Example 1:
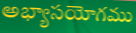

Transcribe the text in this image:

అభ్యాసయోగము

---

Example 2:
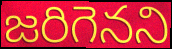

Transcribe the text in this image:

జరిగెనని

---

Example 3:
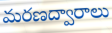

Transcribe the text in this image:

మరణద్వారాలు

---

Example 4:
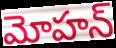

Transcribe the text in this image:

మోహన్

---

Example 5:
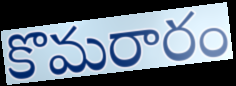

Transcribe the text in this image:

కొమరారం